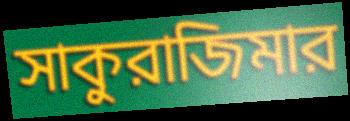
সাকুরাজিমার